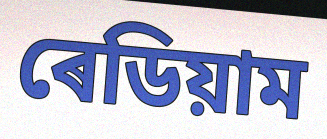
ৰেডিয়াম